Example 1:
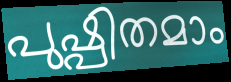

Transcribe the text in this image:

പുഷ്പിതമാം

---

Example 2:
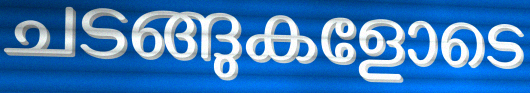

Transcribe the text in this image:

ചടങ്ങുകളോടെ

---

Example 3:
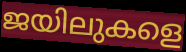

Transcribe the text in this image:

ജയിലുകളെ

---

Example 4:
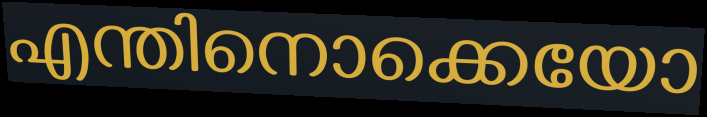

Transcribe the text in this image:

എന്തിനൊക്കെയോ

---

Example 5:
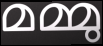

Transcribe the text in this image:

മമ്മു